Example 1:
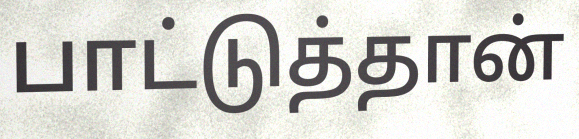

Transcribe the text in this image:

பாட்டுத்தான்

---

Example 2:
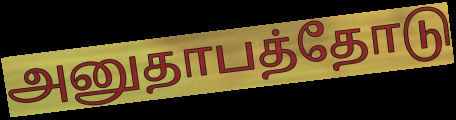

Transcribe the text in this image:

அனுதாபத்தோடு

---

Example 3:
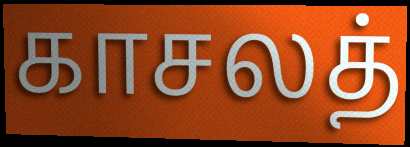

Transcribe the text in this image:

காசலத்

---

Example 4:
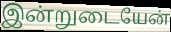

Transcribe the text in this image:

இன்றுடையேன்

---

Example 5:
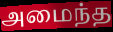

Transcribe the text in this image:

அமைந்த